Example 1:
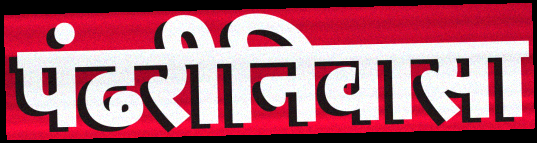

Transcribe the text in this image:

पंढरीनिवासा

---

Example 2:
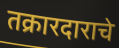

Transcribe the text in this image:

तक्रारदाराचे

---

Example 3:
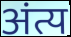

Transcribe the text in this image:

अंत्य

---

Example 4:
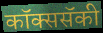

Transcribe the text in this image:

कॉक्ससॅकी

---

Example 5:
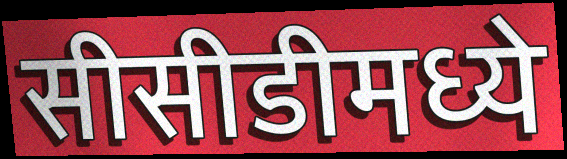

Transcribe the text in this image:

सीसीडीमध्ये